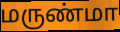
மருண்மா